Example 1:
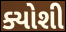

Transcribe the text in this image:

ક્યોશી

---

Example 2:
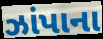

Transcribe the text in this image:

ઝાંપાના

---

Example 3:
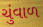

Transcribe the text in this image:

ચુંવાળ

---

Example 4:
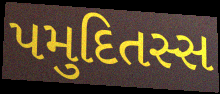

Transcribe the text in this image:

પમુદિતસ્સ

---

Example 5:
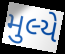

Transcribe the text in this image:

મુલ્યે